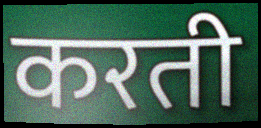
करती